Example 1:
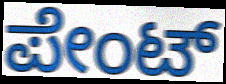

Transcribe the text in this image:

ಪೇಂಟ್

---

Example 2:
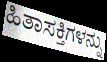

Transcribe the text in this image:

ಹಿತಾಸಕ್ತಿಗಳನ್ನು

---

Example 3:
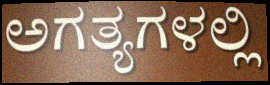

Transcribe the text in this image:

ಅಗತ್ಯಗಳಲ್ಲಿ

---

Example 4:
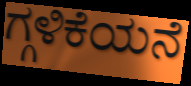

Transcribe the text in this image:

ಗ್ಗಳಿಕೆಯನೆ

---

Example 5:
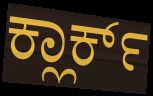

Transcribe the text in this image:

ಕ್ಲಾರ್ಕ್